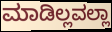
ಮಾಡಿಲ್ಲವಲ್ಲಾ